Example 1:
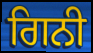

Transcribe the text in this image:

ਗਿਨੀ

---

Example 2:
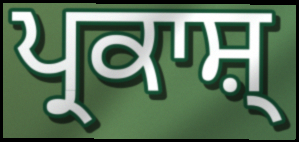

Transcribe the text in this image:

ਪ੍ਰਕਾਸ਼੍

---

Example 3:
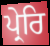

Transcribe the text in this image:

ਪ੍ਰੇਰਿ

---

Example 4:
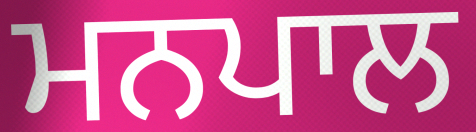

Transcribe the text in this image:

ਮਨਪਾਲ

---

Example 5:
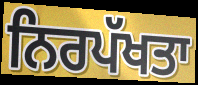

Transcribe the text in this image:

ਨਿਰਪੱਖਤਾ